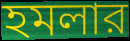
হমলার